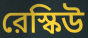
রেস্কিউ